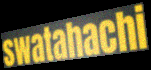
swatahachi